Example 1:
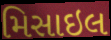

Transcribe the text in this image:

મિસાઇલ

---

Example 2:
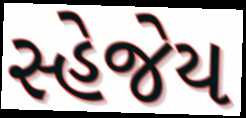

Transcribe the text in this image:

સ્હેજેય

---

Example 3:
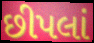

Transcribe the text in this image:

છીપલાં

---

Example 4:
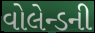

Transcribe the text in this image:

વોલેન્ડની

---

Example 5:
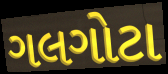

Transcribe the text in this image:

ગલગોટા